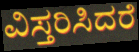
ವಿಸ್ತರಿಸಿದರೆ